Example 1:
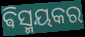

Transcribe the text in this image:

ଵିସ୍ମୟକର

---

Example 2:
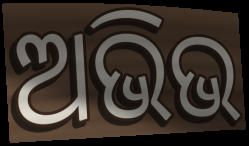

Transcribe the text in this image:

ଅଭିଭ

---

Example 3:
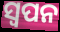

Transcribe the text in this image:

ସ୍ବପନ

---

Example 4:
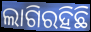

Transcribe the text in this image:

ଲାଗିରହିଛି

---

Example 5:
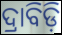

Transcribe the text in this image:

ଦ୍ରାବିଡ଼ି